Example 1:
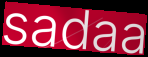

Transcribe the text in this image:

sadaa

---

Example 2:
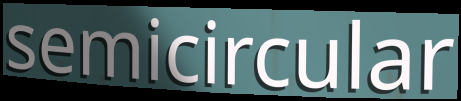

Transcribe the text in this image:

semicircular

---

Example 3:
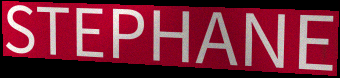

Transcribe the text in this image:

STEPHANE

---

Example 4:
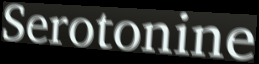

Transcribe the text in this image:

Serotonine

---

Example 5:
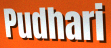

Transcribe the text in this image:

Pudhari